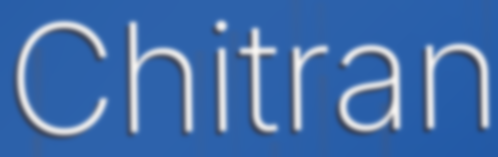
Chitran